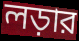
লড়ার